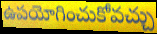
ఉపయోగించుకోవచ్చు